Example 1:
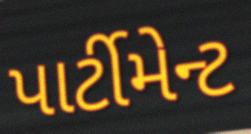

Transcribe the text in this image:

પાર્ટીમેન્ટ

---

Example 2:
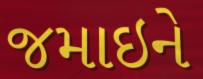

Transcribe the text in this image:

જમાઇને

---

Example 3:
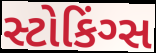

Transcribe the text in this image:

સ્ટોકિંગ્સ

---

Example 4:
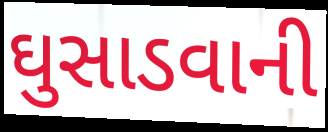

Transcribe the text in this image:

ઘુસાડવાની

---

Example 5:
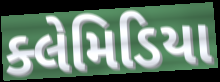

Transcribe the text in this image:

ક્લેમિડિયા